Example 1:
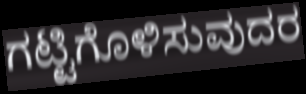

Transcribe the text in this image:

ಗಟ್ಟಿಗೊಳಿಸುವುದರ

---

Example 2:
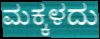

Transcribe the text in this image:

ಮಕ್ಕಳದು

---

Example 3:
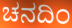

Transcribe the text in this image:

ಚನದಿಂ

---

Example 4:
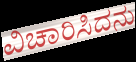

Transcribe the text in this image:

ವಿಚಾರಿಸಿದನು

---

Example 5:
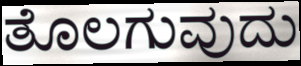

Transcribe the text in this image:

ತೊಲಗುವುದು